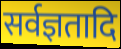
सर्वज्ञतादि